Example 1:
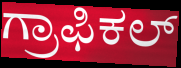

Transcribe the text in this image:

ಗ್ರಾಫಿಕಲ್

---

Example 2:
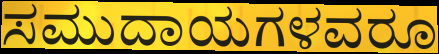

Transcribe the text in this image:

ಸಮುದಾಯಗಳವರೂ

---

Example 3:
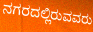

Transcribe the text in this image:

ನಗರದಲ್ಲಿರುವವರು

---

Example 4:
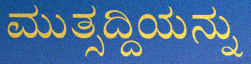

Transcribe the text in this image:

ಮುತ್ಸದ್ದಿಯನ್ನು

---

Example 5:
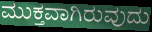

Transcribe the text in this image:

ಮುಕ್ತವಾಗಿರುವುದು